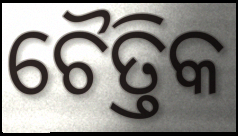
ଚୈତ୍ତିକ